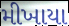
મીખાયા